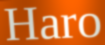
Haro